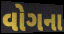
વોગના